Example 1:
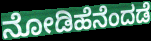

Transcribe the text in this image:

ನೋಡಿಹೆನೆಂದಡೆ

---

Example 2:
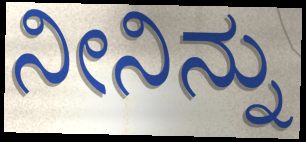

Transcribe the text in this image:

ನೀನಿನ್ನು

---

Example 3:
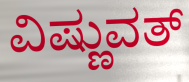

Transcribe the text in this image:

ವಿಷ್ಣುವತ್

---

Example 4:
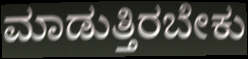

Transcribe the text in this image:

ಮಾಡುತ್ತಿರಬೇಕು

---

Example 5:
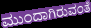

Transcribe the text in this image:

ಮುಂದಾಗಿರುವಂತೆ